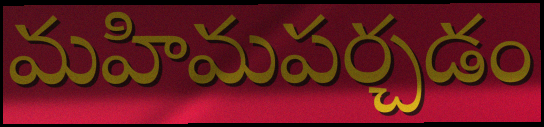
మహిమపర్చడం